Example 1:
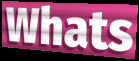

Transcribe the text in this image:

Whats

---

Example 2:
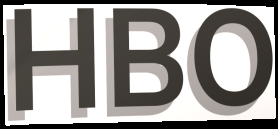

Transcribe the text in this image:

HBO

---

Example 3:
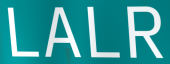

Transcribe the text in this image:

LALR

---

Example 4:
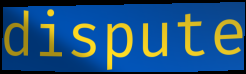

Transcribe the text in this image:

dispute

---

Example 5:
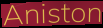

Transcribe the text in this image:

Aniston